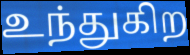
உந்துகிற